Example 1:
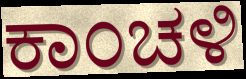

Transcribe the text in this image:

ಕಾಂಚಳಿ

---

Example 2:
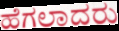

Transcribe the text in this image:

ಹೆಗಲಾದರು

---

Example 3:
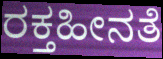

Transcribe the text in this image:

ರಕ್ತಹೀನತೆ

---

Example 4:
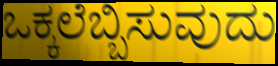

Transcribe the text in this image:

ಒಕ್ಕಲೆಬ್ಬಿಸುವುದು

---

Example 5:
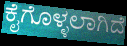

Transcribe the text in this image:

ಕೈಗೊಳ್ಳಲಾಗಿದೆ